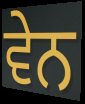
ਵੇਨ